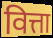
वित्ता